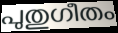
പുതുഗീതം